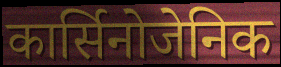
कार्सिनोजेनिक